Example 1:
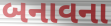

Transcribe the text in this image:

બનાવના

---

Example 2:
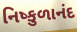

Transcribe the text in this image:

નિષ્કુળાનંદ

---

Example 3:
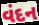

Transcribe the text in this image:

વંદન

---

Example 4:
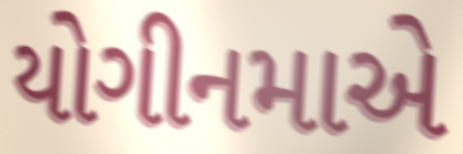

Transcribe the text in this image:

યોગીનમાએ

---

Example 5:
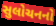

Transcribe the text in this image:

સુલોચનનો